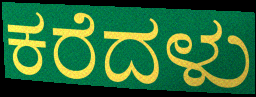
ಕರೆದಳು